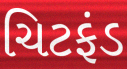
ચિટફંડ